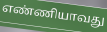
எண்ணியாவது